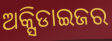
ଅକ୍ସିଡାଇଜର